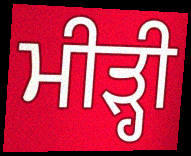
ਮੀੜ੍ਹੀ